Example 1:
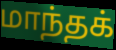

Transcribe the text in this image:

மாந்தக்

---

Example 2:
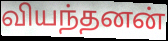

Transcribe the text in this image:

வியந்தனன்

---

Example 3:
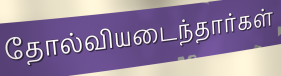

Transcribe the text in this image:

தோல்வியடைந்தார்கள்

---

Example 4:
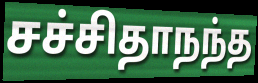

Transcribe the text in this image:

சச்சிதாநந்த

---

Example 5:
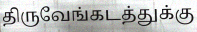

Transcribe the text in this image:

திருவேங்கடத்துக்கு